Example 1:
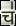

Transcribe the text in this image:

च॑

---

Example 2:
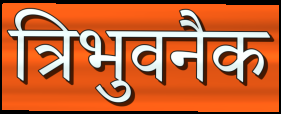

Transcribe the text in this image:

त्रिभुवनैक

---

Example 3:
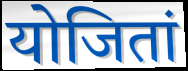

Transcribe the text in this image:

योजितां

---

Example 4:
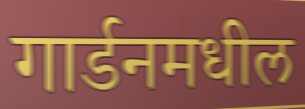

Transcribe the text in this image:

गार्डनमधील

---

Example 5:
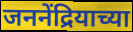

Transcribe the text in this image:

जननेंद्रियाच्या